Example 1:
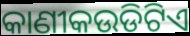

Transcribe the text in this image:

କାଣୀକଉଡିଟିଏ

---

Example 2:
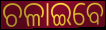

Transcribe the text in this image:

ଚଳାଇବେ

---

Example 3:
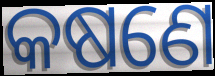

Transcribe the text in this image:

କଷଣେ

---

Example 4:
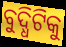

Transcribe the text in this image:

ବୁଦ୍ଧିଟିକୁ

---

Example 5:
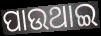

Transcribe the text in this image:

ପାଉଥାଇ